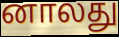
னாலது